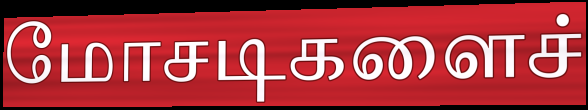
மோசடிகளைச்